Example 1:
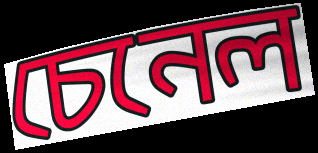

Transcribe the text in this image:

চেনেল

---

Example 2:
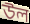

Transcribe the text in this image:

উল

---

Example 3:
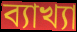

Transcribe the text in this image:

ব্যাখ্যা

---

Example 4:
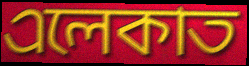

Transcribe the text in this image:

এলেকাত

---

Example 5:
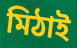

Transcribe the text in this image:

মিঠাই